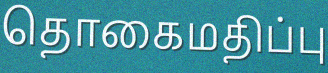
தொகைமதிப்பு